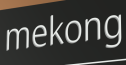
mekong